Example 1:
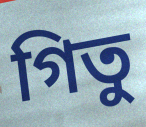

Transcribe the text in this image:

গিতু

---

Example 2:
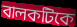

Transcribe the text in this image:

বালকটিকে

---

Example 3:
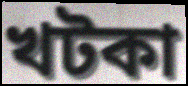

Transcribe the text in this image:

খটকা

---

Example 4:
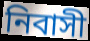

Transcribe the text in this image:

নিবাসী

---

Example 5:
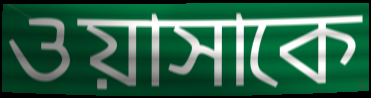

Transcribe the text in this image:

ওয়াসাকে